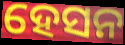
ହେସନ